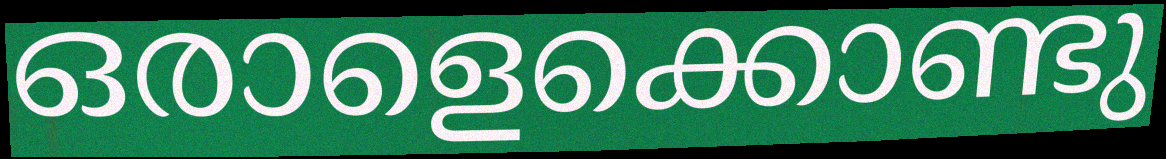
ഒരാളെക്കൊണ്ടു